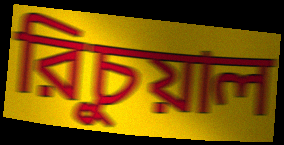
রিচুয়াল